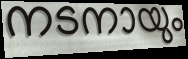
നടനായും